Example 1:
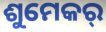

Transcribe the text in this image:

ଶୁମେକର୍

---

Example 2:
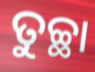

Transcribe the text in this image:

ତୁଚ୍ଛା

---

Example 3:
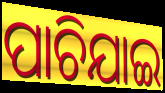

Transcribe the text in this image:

ପାଚିଯାଇ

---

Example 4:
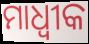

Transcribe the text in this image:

ମାଧ୍ୱୀକ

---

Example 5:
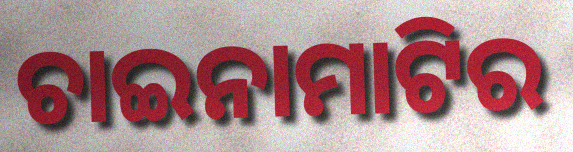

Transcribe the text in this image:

ଚାଇନାମାଟିର